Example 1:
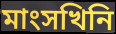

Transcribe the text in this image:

মাংসখিনি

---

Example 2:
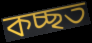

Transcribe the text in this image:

কচ্ছত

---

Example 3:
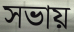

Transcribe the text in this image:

সভায়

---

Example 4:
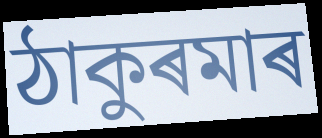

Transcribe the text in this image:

ঠাকুৰমাৰ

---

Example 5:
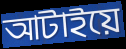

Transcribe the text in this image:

আটাইয়ে